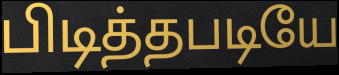
பிடித்தபடியே